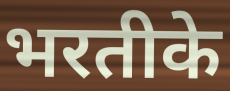
भरतीके